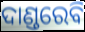
ଦାଣ୍ଡରେବି